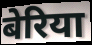
बेरिया